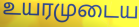
உயரமுடைய